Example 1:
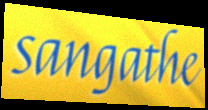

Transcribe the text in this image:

sangathe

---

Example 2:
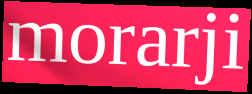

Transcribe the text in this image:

morarji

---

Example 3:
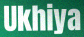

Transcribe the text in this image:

Ukhiya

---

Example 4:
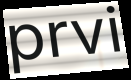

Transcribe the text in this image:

prvi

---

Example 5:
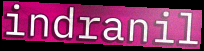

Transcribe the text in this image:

indranil